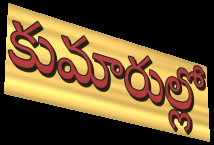
కుమారుల్లో